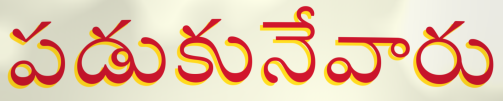
పడుకునేవారు